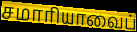
சமாரியாவைப்